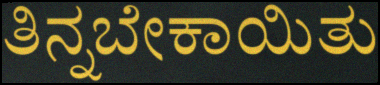
ತಿನ್ನಬೇಕಾಯಿತು